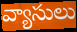
వ్యాసులు